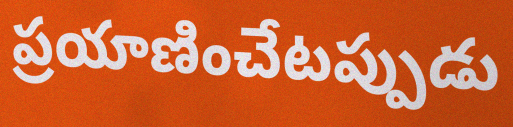
ప్రయాణించేటప్పుడు